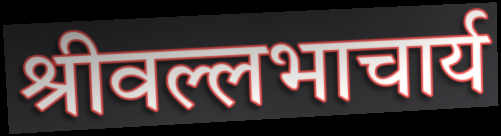
श्रीवल्लभाचार्य